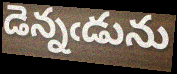
డెన్నఁడును